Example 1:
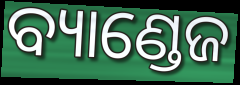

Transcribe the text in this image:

ବ୍ୟାଣ୍ଡେଜ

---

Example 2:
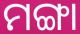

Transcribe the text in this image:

ମଙ୍ଗା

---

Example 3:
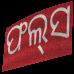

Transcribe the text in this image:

ଫଲ୍‍ସ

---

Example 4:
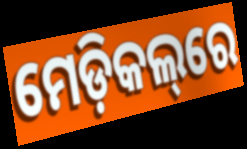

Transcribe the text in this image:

ମେଡ଼ିକଲ୍‌ରେ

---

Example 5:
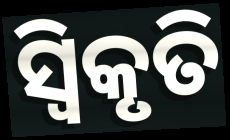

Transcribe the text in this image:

ସ୍ୱିକୃତି